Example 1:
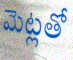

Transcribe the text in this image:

మెట్లతో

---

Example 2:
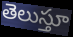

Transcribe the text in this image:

తెలుస్తూ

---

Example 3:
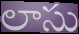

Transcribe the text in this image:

లాసు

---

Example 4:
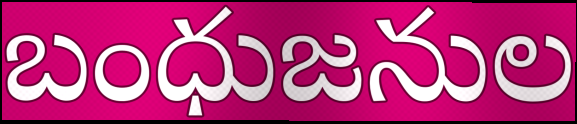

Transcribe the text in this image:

బంధుజనుల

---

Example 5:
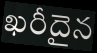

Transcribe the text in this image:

ఖరీదైన